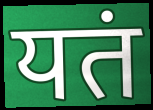
यतं